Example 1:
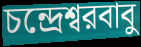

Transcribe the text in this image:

চন্দ্রেশ্বরবাবু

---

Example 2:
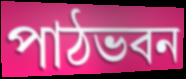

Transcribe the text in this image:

পাঠভবন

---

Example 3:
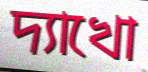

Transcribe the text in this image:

দ্যাখো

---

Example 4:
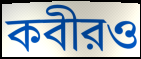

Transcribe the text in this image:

কবীরও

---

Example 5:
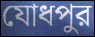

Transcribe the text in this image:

যোধপুর